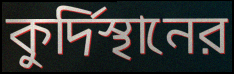
কুর্দিস্থানের